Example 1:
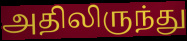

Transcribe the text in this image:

அதிலிருந்து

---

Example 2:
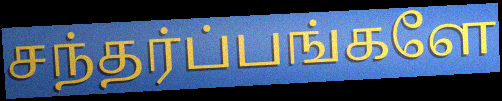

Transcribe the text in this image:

சந்தர்ப்பங்களே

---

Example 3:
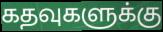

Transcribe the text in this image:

கதவுகளுக்கு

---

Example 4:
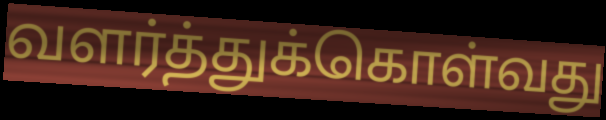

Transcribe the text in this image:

வளர்த்துக்கொள்வது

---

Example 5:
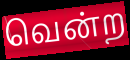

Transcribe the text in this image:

வென்ற